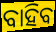
ବାହିବ